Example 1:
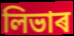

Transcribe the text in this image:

লিভাৰ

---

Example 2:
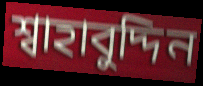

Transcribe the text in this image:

শ্বাহাবুদ্দিন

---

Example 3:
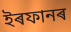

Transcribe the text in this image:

ইৰফানৰ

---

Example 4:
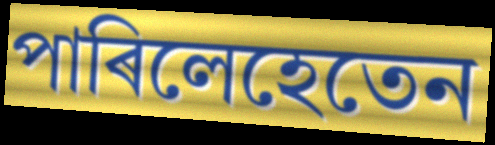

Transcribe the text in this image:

পাৰিলেহেতেন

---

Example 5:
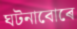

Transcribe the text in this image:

ঘটনাবোৰে